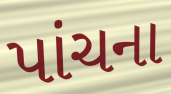
પાંચના